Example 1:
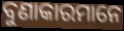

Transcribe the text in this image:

ବୁଣାକାରମାନେ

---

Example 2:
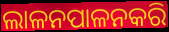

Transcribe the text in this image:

ଲାଳନପାଳନକରି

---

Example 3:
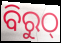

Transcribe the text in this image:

ବିରୁଠ୍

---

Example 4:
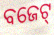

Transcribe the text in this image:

ବଜେଟ୍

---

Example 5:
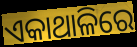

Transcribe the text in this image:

ଏକାଥାଳିରେ